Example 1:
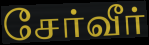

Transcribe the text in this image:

சேர்வீர்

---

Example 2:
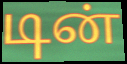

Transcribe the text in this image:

டின்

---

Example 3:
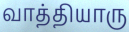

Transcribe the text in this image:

வாத்தியாரு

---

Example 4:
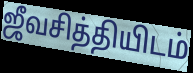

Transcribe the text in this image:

ஜீவசித்தியிடம்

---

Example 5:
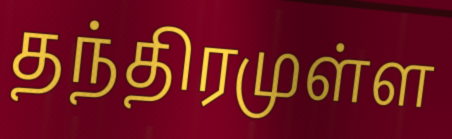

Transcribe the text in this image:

தந்திரமுள்ள